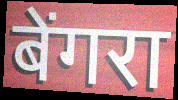
बेंगरा